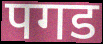
पगड